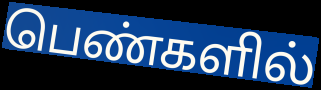
பெண்களில்